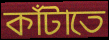
কাঁটাতে